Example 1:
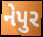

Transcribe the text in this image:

નેપુર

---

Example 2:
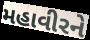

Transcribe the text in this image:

મહાવીરને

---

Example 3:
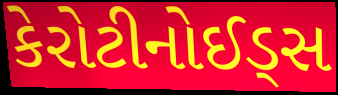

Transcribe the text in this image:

કેરોટીનોઈડ્સ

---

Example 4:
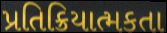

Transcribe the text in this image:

પ્રતિક્રિયાત્મકતા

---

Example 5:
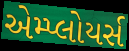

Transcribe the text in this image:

એમ્પ્લોયર્સ